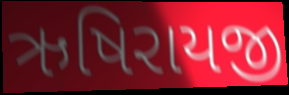
ઋષિરાયજી